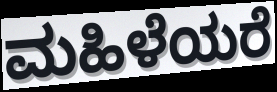
ಮಹಿಳೆಯರೆ